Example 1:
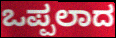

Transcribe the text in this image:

ಒಪ್ಪಲಾದ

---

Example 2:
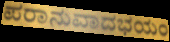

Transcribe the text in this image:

ಪರಾನುವಾದಭಯಂ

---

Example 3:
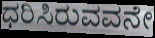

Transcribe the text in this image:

ಧರಿಸಿರುವವನೇ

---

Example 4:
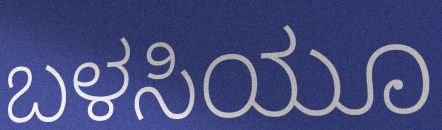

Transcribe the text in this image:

ಬಳಸಿಯೂ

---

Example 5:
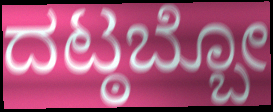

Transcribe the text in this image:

ದಟ್ಠಬ್ಬೋ